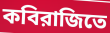
কবিরাজিতে